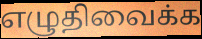
எழுதிவைக்க